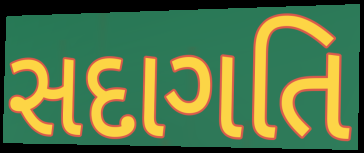
સદાગતિ